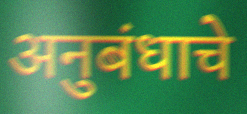
अनुबंधाचे